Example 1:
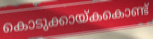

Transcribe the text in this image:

കൊടുക്കായ്കകൊണ്ട്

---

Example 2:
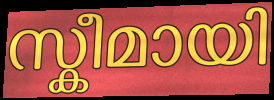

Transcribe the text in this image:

സ്കീമായി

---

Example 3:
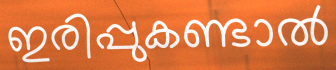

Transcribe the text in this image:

ഇരിപ്പുകണ്ടാൽ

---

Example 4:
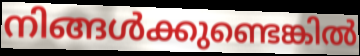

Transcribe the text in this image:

നിങ്ങൾക്കുണ്ടെങ്കിൽ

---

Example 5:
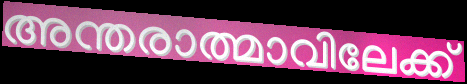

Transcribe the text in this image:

അന്തരാത്മാവിലേക്ക്